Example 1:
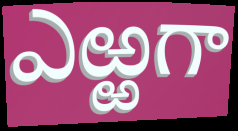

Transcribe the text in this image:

ఎఱ్ఱగా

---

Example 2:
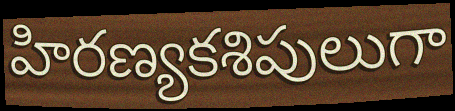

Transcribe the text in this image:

హిరణ్యకశిపులుగా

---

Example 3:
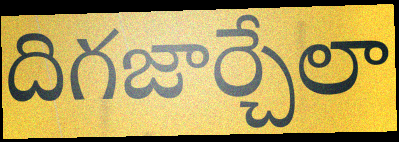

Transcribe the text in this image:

దిగజార్చేలా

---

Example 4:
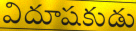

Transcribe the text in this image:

విదూషకుడు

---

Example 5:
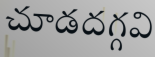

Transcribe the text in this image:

చూడదగ్గవి